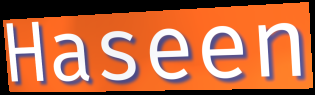
Haseen